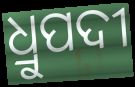
ଧ୍ରୁପଦୀ